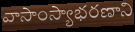
వాసాంస్యాభరణాని